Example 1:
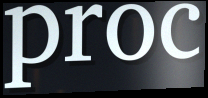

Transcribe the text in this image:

proc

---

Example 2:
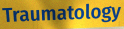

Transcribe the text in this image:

Traumatology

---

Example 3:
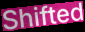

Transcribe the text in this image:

Shifted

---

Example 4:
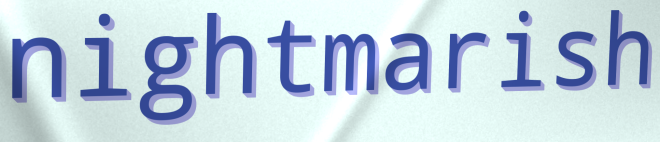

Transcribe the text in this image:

nightmarish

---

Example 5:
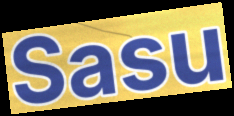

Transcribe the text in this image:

Sasu